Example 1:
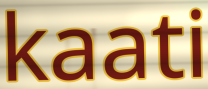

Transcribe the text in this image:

kaati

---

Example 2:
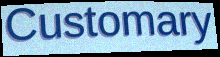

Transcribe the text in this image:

Customary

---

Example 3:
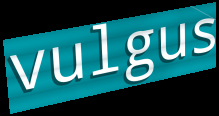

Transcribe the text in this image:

vulgus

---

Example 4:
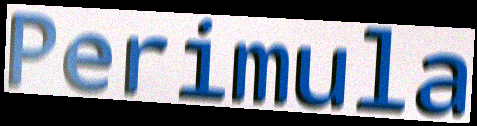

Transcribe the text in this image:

Perimula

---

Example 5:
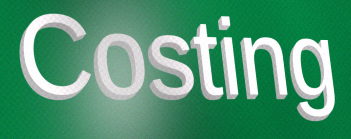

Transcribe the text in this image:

Costing